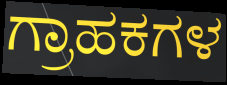
ಗ್ರಾಹಕಗಳ